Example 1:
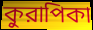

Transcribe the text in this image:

কুরাপিকা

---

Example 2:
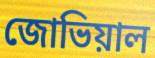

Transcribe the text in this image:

জোভিয়াল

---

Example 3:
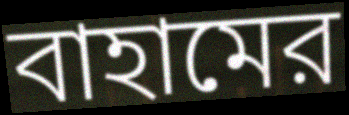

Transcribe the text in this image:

বাহামের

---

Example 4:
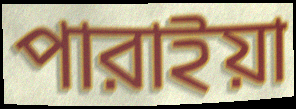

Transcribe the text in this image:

পারাইয়া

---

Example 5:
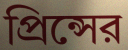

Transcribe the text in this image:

প্রিন্সের